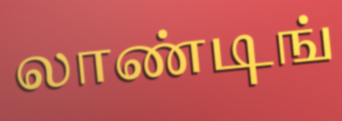
லாண்டிங்